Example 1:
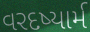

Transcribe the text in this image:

વરદષ્યાર્મ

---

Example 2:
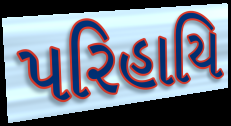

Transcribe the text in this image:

પરિહાયિ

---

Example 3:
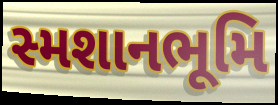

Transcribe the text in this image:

સ્મશાનભૂમિ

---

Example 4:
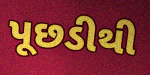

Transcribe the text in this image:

પૂછડીથી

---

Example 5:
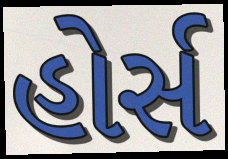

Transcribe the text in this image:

હોર્સ